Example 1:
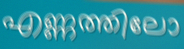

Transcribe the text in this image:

എണ്ണത്തിലോ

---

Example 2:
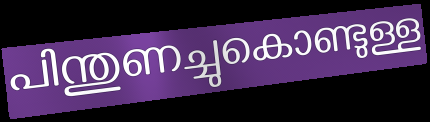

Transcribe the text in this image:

പിന്തുണച്ചുകൊണ്ടുള്ള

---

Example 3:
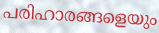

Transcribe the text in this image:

പരിഹാരങ്ങളെയും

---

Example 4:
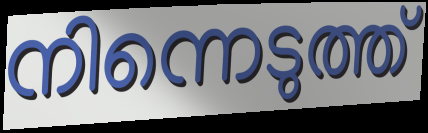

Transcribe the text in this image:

നിന്നെടുത്ത്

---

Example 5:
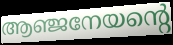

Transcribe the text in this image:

ആഞ്ജനേയന്റെ